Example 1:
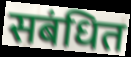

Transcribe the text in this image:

सबंधित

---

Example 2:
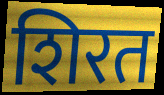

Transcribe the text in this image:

शिरत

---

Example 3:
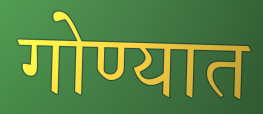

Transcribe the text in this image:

गोण्यात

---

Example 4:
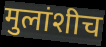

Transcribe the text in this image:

मुलांशीच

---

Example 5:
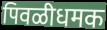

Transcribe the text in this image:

पिवळीधमक